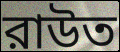
রাউত